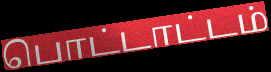
பொட்டாட்டம்